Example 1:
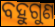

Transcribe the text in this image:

ବହୁଗୁଣ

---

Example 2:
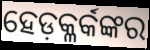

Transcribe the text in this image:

ହେଡ଼କ୍ଳର୍କଙ୍କର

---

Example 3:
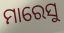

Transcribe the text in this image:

ମାରେସୁ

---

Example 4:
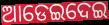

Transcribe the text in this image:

ଆଡେଇଦେଇ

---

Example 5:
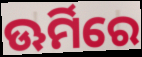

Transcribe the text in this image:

ଊର୍ମିରେ